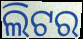
ଲିଟର